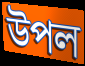
উপল